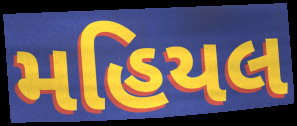
મહિયલ